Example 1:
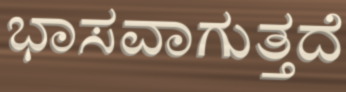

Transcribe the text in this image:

ಭಾಸವಾಗುತ್ತದೆ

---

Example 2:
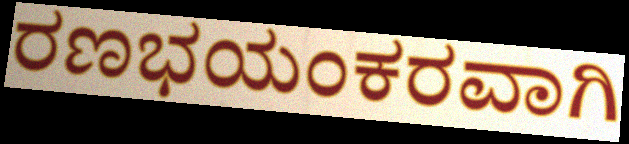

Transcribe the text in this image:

ರಣಭಯಂಕರವಾಗಿ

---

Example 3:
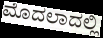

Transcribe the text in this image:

ಮೊದಲಾದಲ್ಲಿ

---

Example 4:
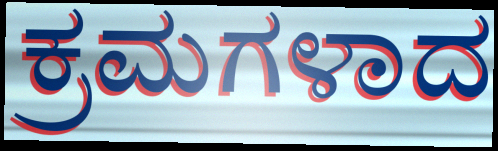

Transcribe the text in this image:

ಕ್ರಮಗಳಾದ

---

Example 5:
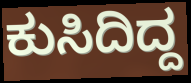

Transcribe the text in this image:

ಕುಸಿದಿದ್ದ